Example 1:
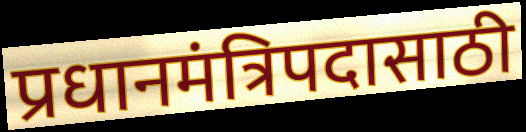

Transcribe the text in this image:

प्रधानमंत्रिपदासाठी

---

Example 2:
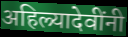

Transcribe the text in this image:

अहिल्यादेवींनी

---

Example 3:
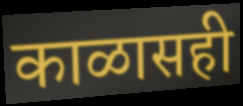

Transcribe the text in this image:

काळासही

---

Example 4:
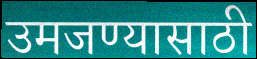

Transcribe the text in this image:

उमजण्यासाठी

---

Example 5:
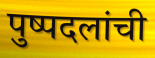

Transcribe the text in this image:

पुष्पदलांची